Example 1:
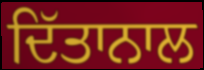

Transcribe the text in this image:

ਦਿੱਤਾਨਾਲ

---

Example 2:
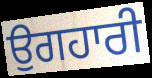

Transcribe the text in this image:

ਉਗਹਾਰੀ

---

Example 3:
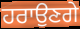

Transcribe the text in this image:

ਹਰਾਉਣਗੇ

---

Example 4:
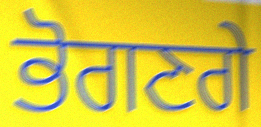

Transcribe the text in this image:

ਭੋਗਣਗੇ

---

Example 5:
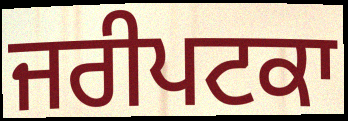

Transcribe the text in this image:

ਜਰੀਪਟਕਾ